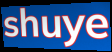
shuye